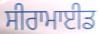
ਸੀਰਾਮਾਈਡ